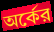
অর্কের